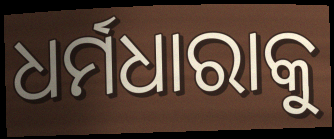
ଧର୍ମଧାରାକୁ